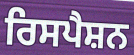
ਰਿਸਪੈਸ਼ਨ